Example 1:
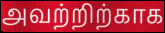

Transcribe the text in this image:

அவற்றிற்காக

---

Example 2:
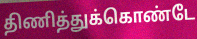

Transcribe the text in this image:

திணித்துக்கொண்டே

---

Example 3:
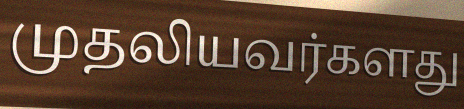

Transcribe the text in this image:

முதலியவர்களது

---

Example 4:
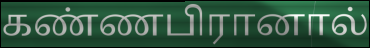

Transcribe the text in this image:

கண்ணபிரானால்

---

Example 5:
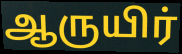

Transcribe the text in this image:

ஆருயிர்